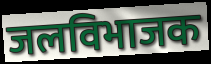
जलविभाजक